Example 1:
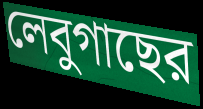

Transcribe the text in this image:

লেবুগাছের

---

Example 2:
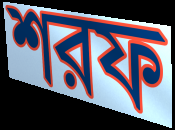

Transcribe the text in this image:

শরফ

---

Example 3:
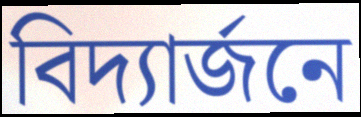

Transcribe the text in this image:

বিদ্যার্জনে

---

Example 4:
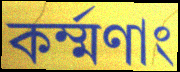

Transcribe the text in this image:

কর্ম্মণাং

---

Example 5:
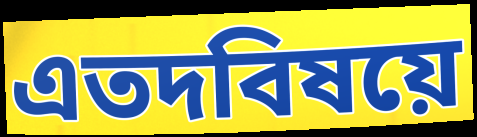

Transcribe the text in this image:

এতদবিষয়ে